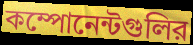
কম্পোনেন্টগুলির